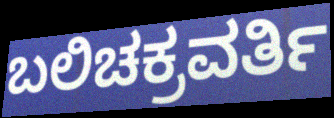
ಬಲಿಚಕ್ರವರ್ತಿ